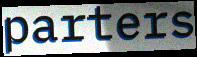
parters